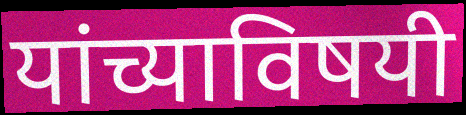
यांच्याविषयी